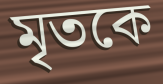
মৃতকে